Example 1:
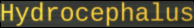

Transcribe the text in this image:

Hydrocephalus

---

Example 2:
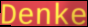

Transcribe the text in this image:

Denke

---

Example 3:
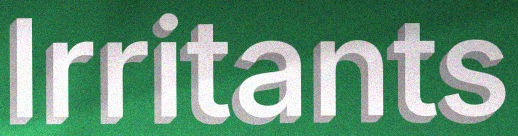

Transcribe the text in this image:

Irritants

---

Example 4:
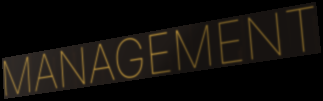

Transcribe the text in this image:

MANAGEMENT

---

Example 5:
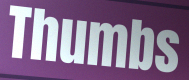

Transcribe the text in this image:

Thumbs